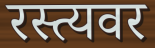
रस्त्यवर